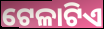
ଟେଳାଟିଏ